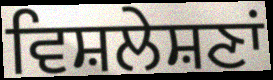
ਵਿਸ਼ਲੇਸ਼ਣਾਂ